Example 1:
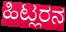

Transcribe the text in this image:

ಹಿಟ್ಲರನ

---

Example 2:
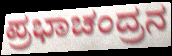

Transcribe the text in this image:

ಪ್ರಭಾಚಂದ್ರನ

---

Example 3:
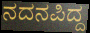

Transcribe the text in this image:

ನದನಪಿದ್ದ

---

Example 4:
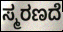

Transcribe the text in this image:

ಸ್ಮರಣದೆ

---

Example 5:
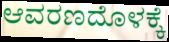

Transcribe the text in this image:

ಆವರಣದೊಳಕ್ಕೆ